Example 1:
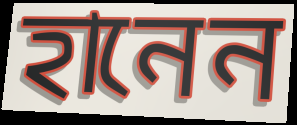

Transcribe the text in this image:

হানেন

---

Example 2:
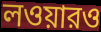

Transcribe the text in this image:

লওয়ারও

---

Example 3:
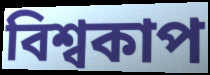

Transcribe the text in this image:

বিশ্বকাপ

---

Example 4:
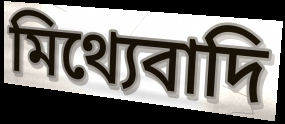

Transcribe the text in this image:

মিথ্যেবাদি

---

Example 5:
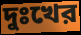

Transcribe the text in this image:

দুঃখের